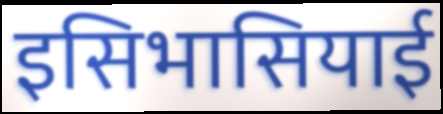
इसिभासियाई